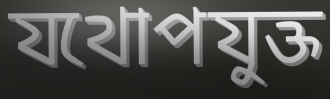
যথোপযুক্ত